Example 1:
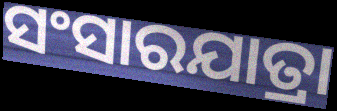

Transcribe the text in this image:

ସଂସାରଯାତ୍ରା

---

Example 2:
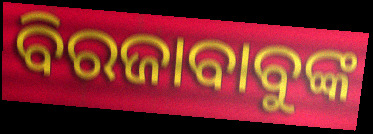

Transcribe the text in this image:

ବିରଜାବାବୁଙ୍କ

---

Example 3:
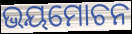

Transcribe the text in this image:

ଭୟମୋଚନ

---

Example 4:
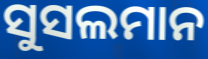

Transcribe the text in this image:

ସୁସଲମାନ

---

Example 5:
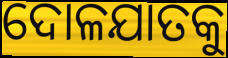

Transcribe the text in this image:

ଦୋଳଯାତକୁ